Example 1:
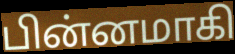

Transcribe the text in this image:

பின்னமாகி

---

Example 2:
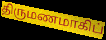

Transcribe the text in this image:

திருமணமாகிப்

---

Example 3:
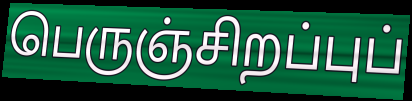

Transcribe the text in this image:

பெருஞ்சிறப்புப்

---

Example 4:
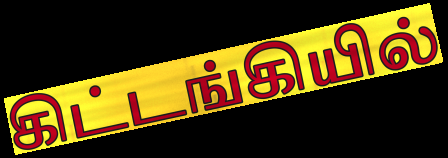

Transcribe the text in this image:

கிட்டங்கியில்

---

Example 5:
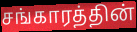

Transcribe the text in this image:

சங்காரத்தின்